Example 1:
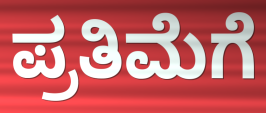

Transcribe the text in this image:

ಪ್ರತಿಮೆಗೆ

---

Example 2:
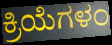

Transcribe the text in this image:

ಕ್ರಿಯೆಗಳಂ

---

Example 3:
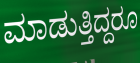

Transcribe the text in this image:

ಮಾಡುತ್ತಿದ್ದರೂ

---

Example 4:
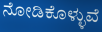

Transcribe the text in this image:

ನೋಡಿಕೊಳ್ಳುವೆ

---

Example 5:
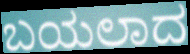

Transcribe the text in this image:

ಬಯಲಾದ